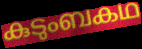
കുടുംബകഥ